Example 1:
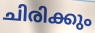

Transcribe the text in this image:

ചിരിക്കും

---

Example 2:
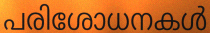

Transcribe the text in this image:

പരിശോധനകൾ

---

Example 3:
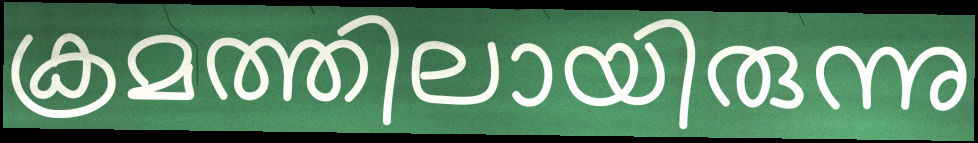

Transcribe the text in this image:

ക്രമത്തിലായിരുന്നു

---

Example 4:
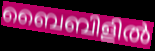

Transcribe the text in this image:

ബൈബിളിൽ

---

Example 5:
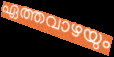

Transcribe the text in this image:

ഏത്തവാഴയും